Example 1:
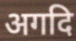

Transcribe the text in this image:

अगदि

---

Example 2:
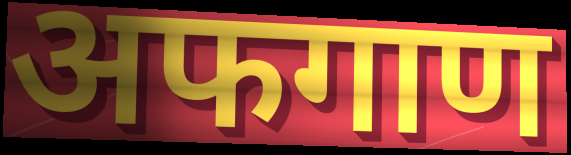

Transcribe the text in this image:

अफगाण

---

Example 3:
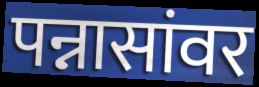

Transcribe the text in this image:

पन्नासांवर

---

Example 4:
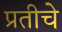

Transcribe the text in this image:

प्रतीचे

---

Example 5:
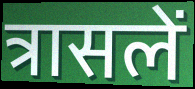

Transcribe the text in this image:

त्रासलें